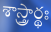
శాస్త్రార్థః